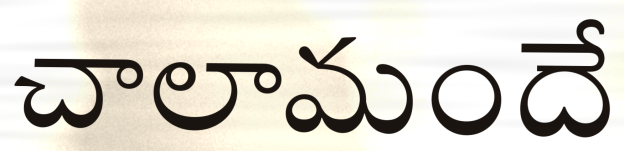
చాలామందే